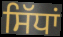
ਸਿੱਧਾਂ